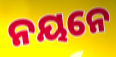
ନୟନେ